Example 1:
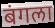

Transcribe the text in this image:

बंगला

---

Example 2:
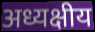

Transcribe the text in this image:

अध्यक्षीय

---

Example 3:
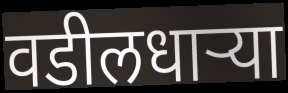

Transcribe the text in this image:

वडीलधार्‍या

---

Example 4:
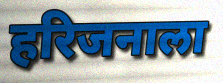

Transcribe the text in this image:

हरिजनाला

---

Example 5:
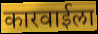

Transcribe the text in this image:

कारवाईला